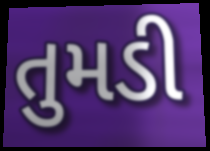
તુમડી